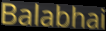
Balabhai